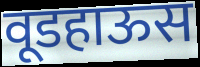
वूडहाऊस